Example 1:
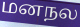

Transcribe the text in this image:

மனநல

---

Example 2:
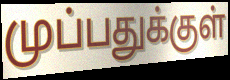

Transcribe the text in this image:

முப்பதுக்குள்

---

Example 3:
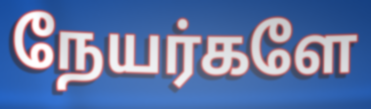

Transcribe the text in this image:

நேயர்களே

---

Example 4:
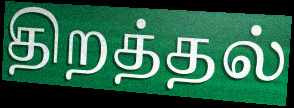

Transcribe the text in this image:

திறத்தல்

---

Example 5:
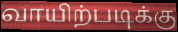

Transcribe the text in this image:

வாயிற்படிக்கு